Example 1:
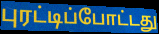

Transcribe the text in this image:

புரட்டிப்போட்டது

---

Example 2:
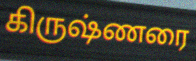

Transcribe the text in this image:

கிருஷ்ணரை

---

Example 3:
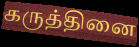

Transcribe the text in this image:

கருத்தினை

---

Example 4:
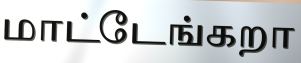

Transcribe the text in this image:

மாட்டேங்கறா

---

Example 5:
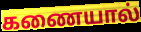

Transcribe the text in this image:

கணையால்